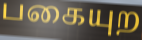
பகையுற